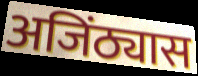
अजिंठ्यास